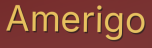
Amerigo